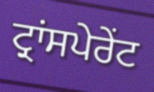
ਟ੍ਰਾਂਸਪੇਰੇਂਟ